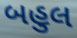
બહુલ